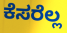
ಕೆಸರೆಲ್ಲ